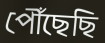
পৌঁছেছি